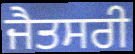
ਜੈਤਸਰੀ